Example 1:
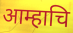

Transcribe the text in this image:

आम्हाचि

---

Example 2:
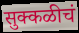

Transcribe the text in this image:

सुक्कळीचं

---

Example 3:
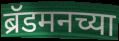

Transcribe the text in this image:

ब्रॅडमनच्या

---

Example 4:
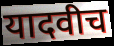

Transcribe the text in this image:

यादवीच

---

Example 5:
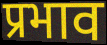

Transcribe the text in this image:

प्रभाव